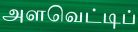
அளவெட்டிப்